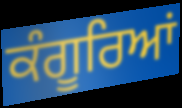
ਕੰਗੂਰਿਆਂ